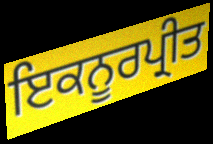
ਇਕਨੂਰਪ੍ਰੀਤ